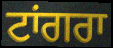
ਟਾਂਗਰਾ